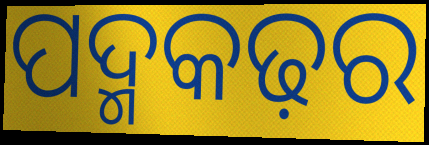
ପଦ୍ମକଢ଼ର